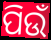
ପିଉଁ